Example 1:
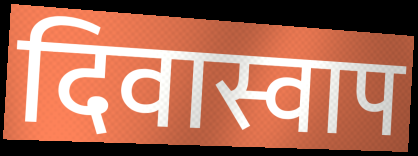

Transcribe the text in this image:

दिवास्वाप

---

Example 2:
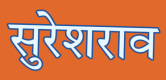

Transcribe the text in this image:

सुरेशराव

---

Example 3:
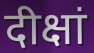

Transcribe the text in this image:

दीक्षां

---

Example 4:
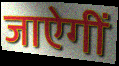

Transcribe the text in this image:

जाऐगीं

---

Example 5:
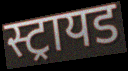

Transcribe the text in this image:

स्ट्रायड